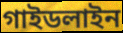
গাইডলাইন